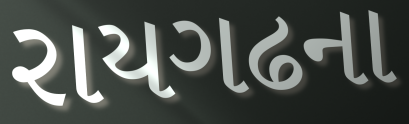
રાયગઢના